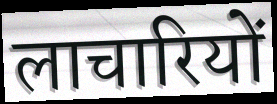
लाचारियों